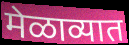
मेळाव्यात